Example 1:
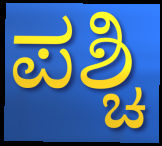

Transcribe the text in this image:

ಪಶ್ಚಿ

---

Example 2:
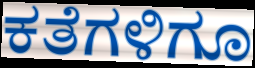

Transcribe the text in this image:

ಕತೆಗಳಿಗೂ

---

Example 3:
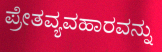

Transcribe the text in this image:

ಪ್ರೇತವ್ಯವಹಾರವನ್ನು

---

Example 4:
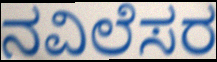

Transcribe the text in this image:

ನವಿಲೆಸರ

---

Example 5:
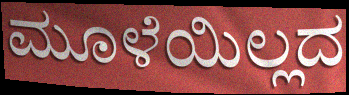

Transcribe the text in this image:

ಮೂಳೆಯಿಲ್ಲದ